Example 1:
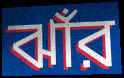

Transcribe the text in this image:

ঝাঁর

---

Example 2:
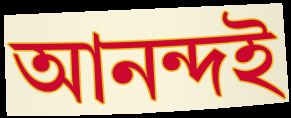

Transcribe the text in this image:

আনন্দই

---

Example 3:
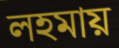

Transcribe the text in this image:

লহমায়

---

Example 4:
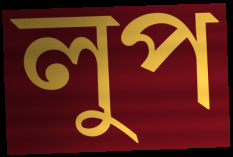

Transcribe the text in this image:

লুপ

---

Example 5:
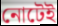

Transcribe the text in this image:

নোটেই